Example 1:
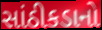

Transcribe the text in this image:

સાંઠીકડાનો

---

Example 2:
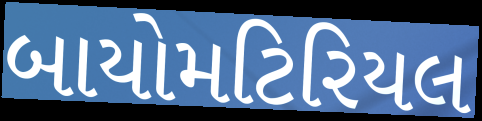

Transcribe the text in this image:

બાયોમટિરિયલ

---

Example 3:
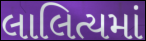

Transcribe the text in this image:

લાલિત્યમાં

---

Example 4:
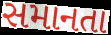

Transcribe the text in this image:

સમાનતા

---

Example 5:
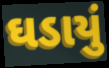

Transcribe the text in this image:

ઘડાયું